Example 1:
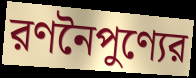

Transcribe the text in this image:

রণনৈপুণ্যের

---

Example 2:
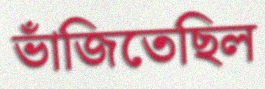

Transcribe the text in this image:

ভাঁজিতেছিল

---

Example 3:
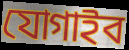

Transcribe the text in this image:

যোগাইব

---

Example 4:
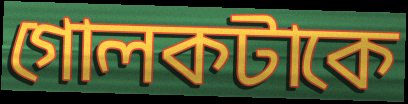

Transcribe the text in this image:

গোলকটাকে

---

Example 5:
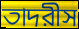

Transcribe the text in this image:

তাদরীস